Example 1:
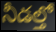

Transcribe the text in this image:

నీడల్తో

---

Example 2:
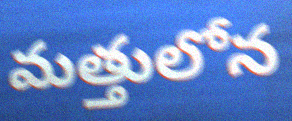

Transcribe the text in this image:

మత్తులోన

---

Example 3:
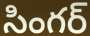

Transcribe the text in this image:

సింగర్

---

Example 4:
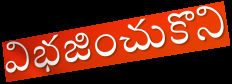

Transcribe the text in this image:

విభజించుకొని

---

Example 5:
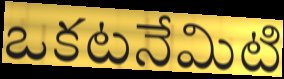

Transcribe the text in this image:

ఒకటనేమిటి